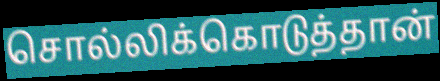
சொல்லிக்கொடுத்தான்